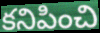
కనిపించి